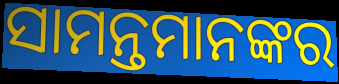
ସାମନ୍ତମାନଙ୍କର